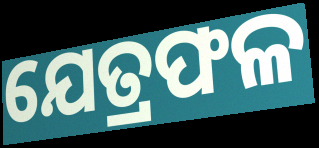
ଯେତ୍ରଫଳ